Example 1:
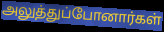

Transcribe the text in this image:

அலுத்துப்போனார்கள்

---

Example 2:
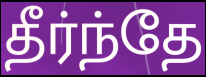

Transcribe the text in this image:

தீர்ந்தே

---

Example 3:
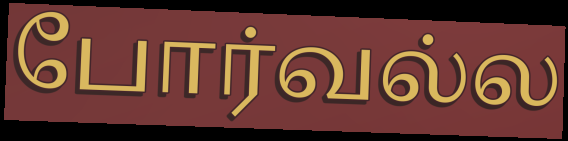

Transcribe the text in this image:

போர்வல்ல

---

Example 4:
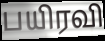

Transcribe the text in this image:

பயிரவி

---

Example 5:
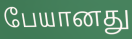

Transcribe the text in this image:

பேயானது